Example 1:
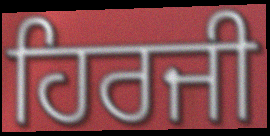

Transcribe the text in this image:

ਹਿਰਜੀ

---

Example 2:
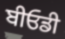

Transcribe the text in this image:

ਬੀਓਡੀ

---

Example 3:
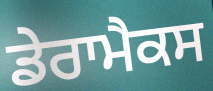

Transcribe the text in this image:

ਡੇਰਾਮੈਕਸ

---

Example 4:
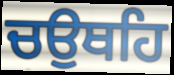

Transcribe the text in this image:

ਚਉਥਹਿ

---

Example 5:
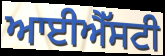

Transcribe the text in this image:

ਆਈਐੱਸਟੀ